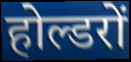
होल्‍डरों